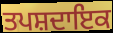
ਤਪਸ਼ਦਾਇਕ